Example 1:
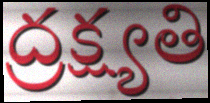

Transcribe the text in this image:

ద్రక్ష్యతి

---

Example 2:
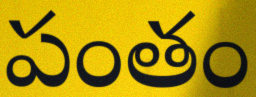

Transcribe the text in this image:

పంతం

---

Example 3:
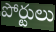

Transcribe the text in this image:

పోర్టులు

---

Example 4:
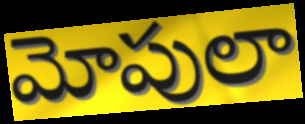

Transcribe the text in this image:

మోపులా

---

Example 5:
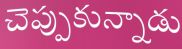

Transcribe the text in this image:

చెప్పుకున్నాడు